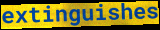
extinguishes